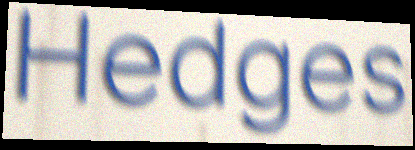
Hedges